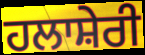
ਹਲਾਸ਼ੇਰੀ